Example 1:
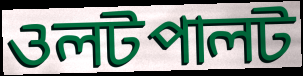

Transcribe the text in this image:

ওলটপালট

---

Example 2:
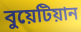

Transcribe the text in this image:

বুয়েটিয়ান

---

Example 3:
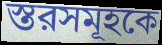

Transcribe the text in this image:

স্তরসমূহকে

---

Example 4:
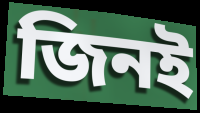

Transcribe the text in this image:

জিনই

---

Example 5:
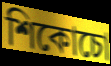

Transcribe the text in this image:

শিকোচো